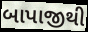
બાપાજીથી